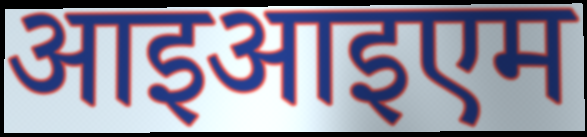
आइआइएम